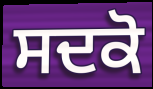
ਸਦਕੋ